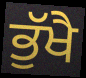
ਭੁੱਖੈ